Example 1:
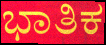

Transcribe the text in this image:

ಭಾತಿಕ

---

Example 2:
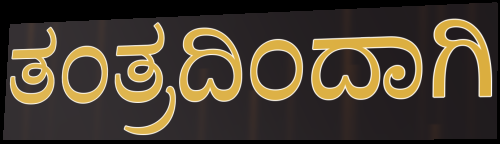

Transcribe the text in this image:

ತಂತ್ರದಿಂದಾಗಿ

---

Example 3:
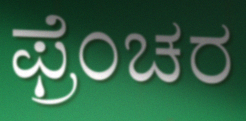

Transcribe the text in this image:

ಫ್ರೆಂಚರ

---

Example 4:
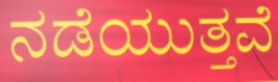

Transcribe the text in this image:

ನಡೆಯುತ್ತವೆ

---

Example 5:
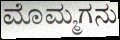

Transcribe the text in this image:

ಮೊಮ್ಮಗನು